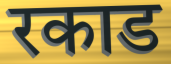
रकाड